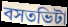
বসতভিটা